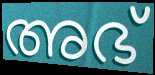
അഭ്